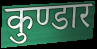
कुण्डार